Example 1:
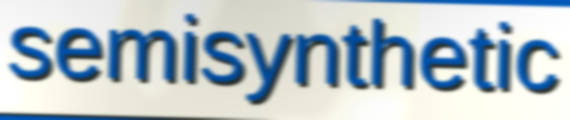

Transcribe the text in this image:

semisynthetic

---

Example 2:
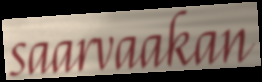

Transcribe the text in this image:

saarvaakan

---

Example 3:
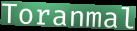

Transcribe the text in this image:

Toranmal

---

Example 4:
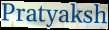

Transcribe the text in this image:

Pratyaksh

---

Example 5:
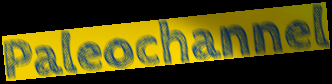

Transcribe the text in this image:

Paleochannel